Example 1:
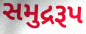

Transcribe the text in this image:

સમુદ્રરૂપ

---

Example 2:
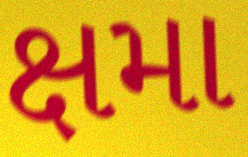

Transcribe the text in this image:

ક્ષમા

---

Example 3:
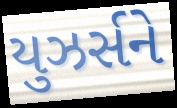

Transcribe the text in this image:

યુઝર્સને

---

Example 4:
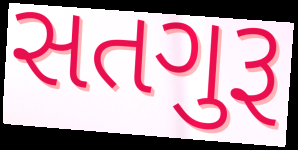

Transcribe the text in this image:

સતગુરૂ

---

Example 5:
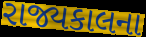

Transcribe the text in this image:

રાજ્યકાલના